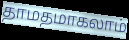
தாமதமாகலாம்